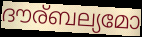
ദൗര്ബല്യമോ